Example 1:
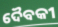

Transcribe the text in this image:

ଦୈବକୀ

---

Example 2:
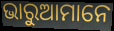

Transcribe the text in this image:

ଭାରୁଆମାନେ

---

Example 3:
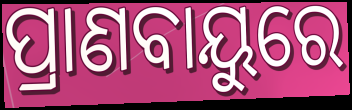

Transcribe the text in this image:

ପ୍ରାଣବାୟୁରେ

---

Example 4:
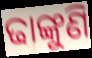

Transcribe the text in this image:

ଢାଙ୍କୁଣି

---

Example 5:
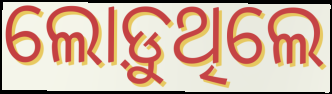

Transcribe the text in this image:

ଲୋଡ଼ୁଥିଲେ